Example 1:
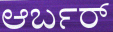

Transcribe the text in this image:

ಆರ್ಬರ್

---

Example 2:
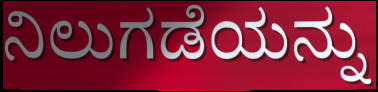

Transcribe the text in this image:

ನಿಲುಗಡೆಯನ್ನು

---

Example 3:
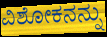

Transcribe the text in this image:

ವಿಶೋಕನನ್ನು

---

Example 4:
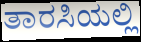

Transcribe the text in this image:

ತಾರಸಿಯಲ್ಲಿ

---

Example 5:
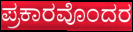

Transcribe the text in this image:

ಪ್ರಕಾರವೊಂದರ